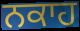
ਨਕਾਹ